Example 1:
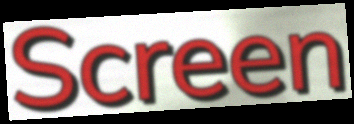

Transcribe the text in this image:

Screen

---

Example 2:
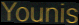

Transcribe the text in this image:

Younis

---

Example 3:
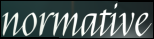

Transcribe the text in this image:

normative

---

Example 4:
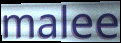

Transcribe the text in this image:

malee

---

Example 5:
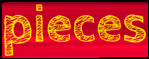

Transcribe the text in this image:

pieces